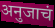
अनुजाचं